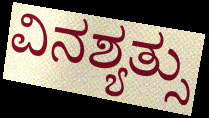
ವಿನಶ್ಯತ್ಸು